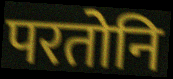
परतोनि